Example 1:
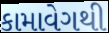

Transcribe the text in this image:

કામાવેગથી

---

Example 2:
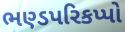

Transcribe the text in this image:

ભણ્ડપરિકપ્પો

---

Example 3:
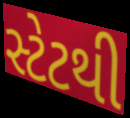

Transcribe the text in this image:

સ્ટેટથી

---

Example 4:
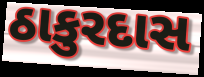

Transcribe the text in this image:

ઠાકુરદાસ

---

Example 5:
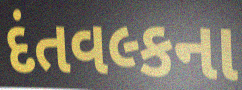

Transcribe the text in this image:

દંતવલ્કના